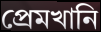
প্রেমখানি